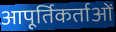
आपूर्तिकर्ताओं